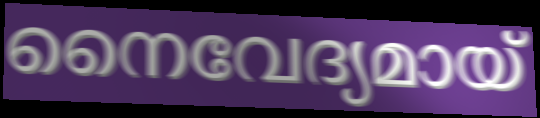
നൈവേദ്യമായ്